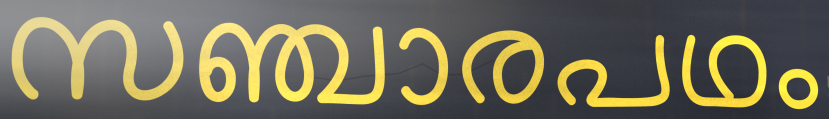
സഞ്ചാരപഥം